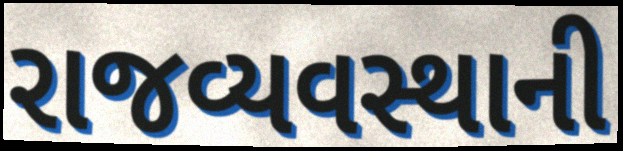
રાજવ્યવસ્થાની